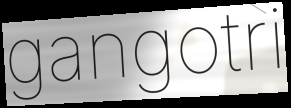
gangotri